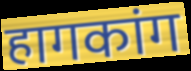
हागकांग